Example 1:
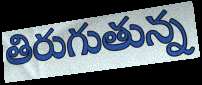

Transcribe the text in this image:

తిరుగుతున్న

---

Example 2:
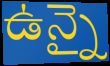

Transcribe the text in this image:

ఉన్నై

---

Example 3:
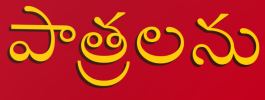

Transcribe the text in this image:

పాత్రలను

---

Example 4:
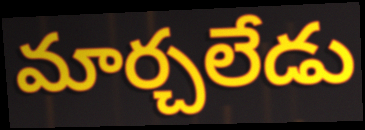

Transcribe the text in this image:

మార్చలేడు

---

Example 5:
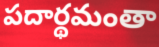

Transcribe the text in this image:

పదార్థమంతా